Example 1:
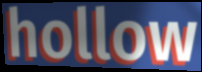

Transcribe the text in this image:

hollow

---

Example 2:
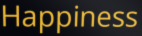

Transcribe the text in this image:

Happiness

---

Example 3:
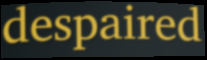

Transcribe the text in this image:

despaired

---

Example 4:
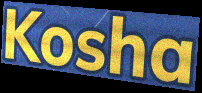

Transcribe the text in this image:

Kosha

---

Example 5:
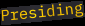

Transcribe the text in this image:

Presiding